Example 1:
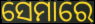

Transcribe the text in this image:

ସେମାରେ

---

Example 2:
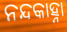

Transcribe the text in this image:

ନନ୍ଦକାହ୍ନା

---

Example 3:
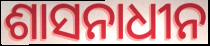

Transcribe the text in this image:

ଶାସନାଧୀନ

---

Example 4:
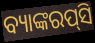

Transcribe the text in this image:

ବ୍ୟାଙ୍କରପ୍‌ସି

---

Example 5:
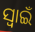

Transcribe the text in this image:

ସ୍ଵାଇଁ